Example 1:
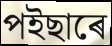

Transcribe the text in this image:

পইছাৰে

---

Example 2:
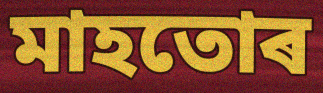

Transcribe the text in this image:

মাহতোৰ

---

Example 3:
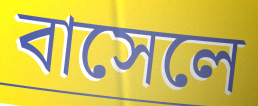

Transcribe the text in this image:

বাসেলে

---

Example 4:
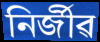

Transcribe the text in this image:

নিৰ্জীৱ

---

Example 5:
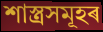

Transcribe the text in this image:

শাস্ত্ৰসমূহৰ